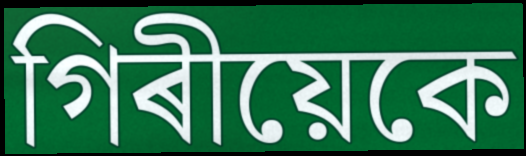
গিৰীয়েকে